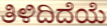
ತಿಳಿದಿದೆಯೆ